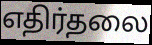
எதிர்தலை